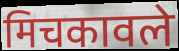
मिचकावले